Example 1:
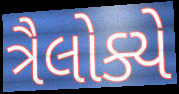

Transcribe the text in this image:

ત્રૈલોક્યે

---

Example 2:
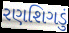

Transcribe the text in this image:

રણશિગડું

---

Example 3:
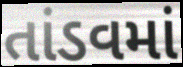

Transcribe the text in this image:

તાંડવમાં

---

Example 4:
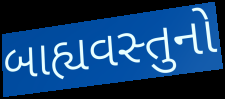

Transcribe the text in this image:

બાહ્યવસ્તુનો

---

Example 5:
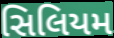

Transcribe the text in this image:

સિલિયમ